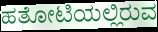
ಹತೋಟಿಯಲ್ಲಿರುವ